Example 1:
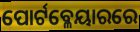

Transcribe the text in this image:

ପୋର୍ଟବ୍ଳେୟାରରେ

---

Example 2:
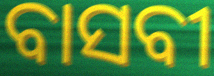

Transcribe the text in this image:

ବାସବୀ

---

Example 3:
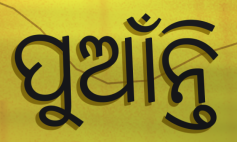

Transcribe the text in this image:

ପୁଆଁନ୍ତି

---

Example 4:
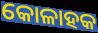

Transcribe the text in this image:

କୋଳାହକ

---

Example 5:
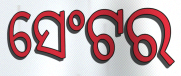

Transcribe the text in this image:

ସେଂଟର